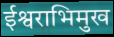
ईश्वराभिमुख